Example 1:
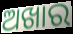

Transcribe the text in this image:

ଅଖାର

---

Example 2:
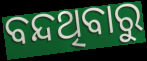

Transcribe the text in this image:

ବନ୍ଦଥିବାରୁ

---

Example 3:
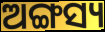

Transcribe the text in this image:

ଅଙ୍ଗସ୍ୟ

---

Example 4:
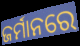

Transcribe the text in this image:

ଜର୍ମାନରେ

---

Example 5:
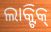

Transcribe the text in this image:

ଲାକ୍ଟିକ୍